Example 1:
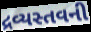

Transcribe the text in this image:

દ્રવ્યસ્તવની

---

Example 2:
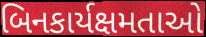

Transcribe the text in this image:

બિનકાર્યક્ષમતાઓ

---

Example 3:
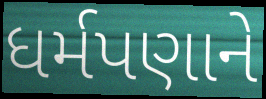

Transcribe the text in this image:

ધર્મપણાને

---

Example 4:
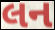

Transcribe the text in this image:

લન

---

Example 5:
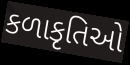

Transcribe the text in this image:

કળાકૃતિઓ